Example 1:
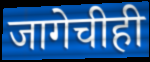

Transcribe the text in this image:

जागेचीही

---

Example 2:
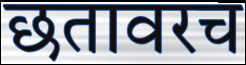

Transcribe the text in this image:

छतावरच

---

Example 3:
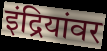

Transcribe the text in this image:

इंद्रियांवर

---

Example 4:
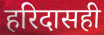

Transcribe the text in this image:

हरिदासही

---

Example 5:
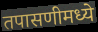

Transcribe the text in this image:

तपासणीमध्ये